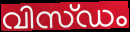
വിസ്ഡം